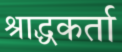
श्राद्धकर्ता